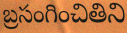
బ్రసంగించితిని